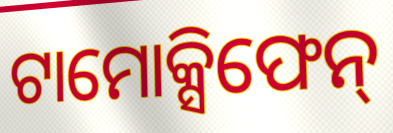
ଟାମୋକ୍ସିଫେନ୍